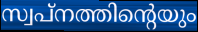
സ്വപ്നത്തിന്റെയും